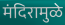
मंदिरामुळे